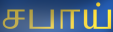
சபாய்